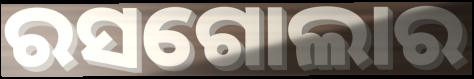
ରସଗୋଲାର